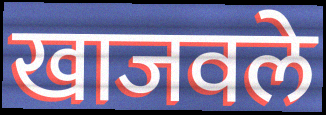
खाजवले